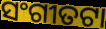
ସଂଗୀତଟା